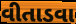
વીતાડવા